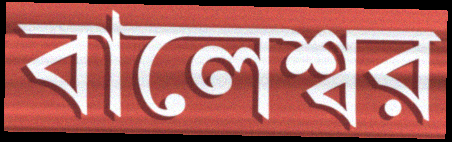
বালেশ্বর